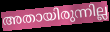
അതായിരുന്നില്ല